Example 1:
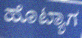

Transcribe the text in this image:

ಹೊಟ್ಯಾಗ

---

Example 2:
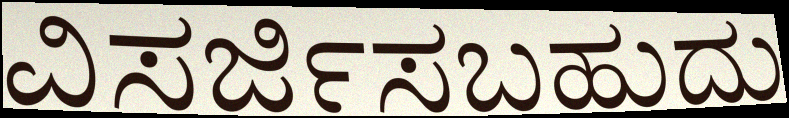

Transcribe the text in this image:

ವಿಸರ್ಜಿಸಬಹುದು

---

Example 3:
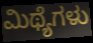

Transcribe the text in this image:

ಮಿಥ್ಯೆಗಳು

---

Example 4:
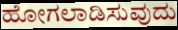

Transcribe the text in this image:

ಹೋಗಲಾಡಿಸುವುದು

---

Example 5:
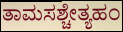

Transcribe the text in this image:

ತಾಮಸಶ್ಚೇತ್ಯಹಂ